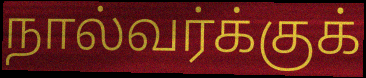
நால்வர்க்குக்